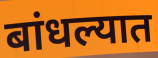
बांधल्यात